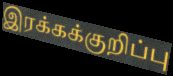
இரக்கக்குறிப்பு